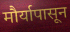
मौर्यापासून